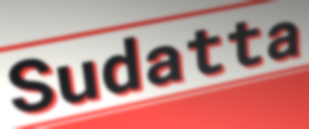
Sudatta